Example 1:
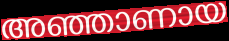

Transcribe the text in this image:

അഞ്ഞാണായ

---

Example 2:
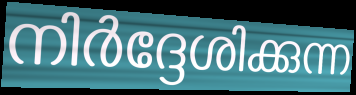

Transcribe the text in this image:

നിർദ്ദേശിക്കുന്ന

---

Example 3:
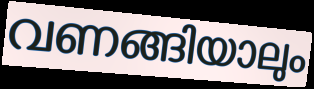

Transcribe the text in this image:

വണങ്ങിയാലും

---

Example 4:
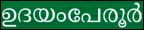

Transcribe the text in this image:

ഉദയംപേരൂർ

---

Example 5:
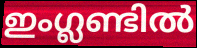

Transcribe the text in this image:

ഇംഗ്ലണ്ടിൽ